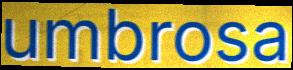
umbrosa